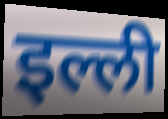
इल्ली